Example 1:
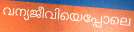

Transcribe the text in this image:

വന്യജീവിയെപ്പോലെ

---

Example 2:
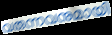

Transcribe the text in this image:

വരുന്നവനുമായി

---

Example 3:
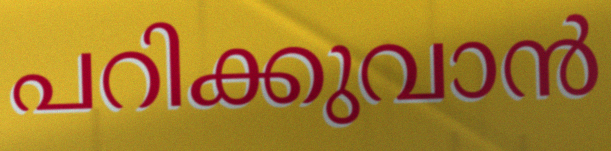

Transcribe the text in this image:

പറിക്കുവാൻ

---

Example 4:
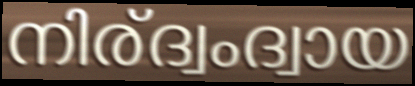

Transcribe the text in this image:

നിര്ദ്വംദ്വായ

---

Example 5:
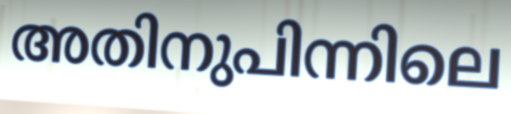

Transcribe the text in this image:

അതിനുപിന്നിലെ